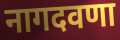
नागदवणा